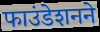
फाउंडेशनने